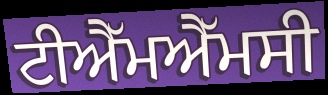
ਟੀਐੱਮਐੱਮਸੀ